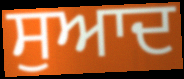
ਸੁਆਦ